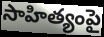
సాహిత్యంపై